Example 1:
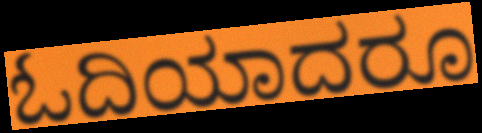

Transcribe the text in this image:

ಓದಿಯಾದರೂ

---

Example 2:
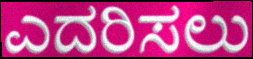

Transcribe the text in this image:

ಎದರಿಸಲು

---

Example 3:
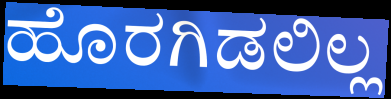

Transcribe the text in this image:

ಹೊರಗಿಡಲಿಲ್ಲ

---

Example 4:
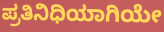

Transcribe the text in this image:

ಪ್ರತಿನಿಧಿಯಾಗಿಯೇ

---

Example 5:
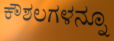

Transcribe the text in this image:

ಕೌಶಲಗಳನ್ನೂ